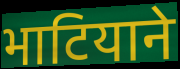
भाटियाने